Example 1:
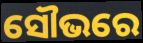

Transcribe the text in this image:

ସୌଭରେ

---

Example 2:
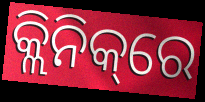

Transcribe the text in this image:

କ୍ଲିନିକ୍‌ରେ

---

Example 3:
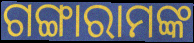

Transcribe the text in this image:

ଗଙ୍ଗାରାମଙ୍କ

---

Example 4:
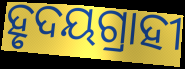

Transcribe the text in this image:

ହୃଦୟଗ୍ରାହୀ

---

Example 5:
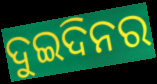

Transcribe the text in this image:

ଦୁଇଦିନର